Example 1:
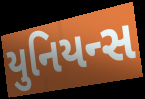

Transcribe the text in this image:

યુનિયન્સ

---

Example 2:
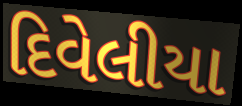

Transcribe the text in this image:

દિવેલીયા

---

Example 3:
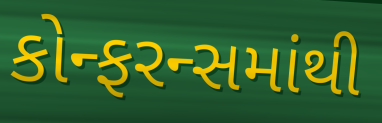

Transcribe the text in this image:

કોન્ફરન્સમાંથી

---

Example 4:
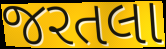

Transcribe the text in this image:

જરતલા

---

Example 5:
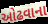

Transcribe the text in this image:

ઓઢવાના